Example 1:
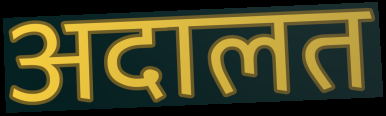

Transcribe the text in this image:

अदालत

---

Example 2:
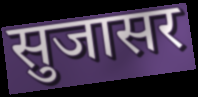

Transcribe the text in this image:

सुजासर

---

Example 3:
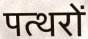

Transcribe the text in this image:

पत्थरों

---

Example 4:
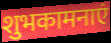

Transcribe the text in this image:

शुभकामनाएं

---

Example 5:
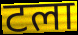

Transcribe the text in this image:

टला